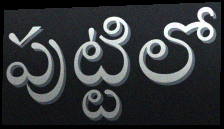
పుట్టిలో